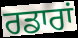
ਰਡਾਰਾਂ